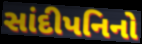
સાંદીપનિનો